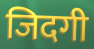
जिदगी